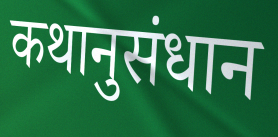
कथानुसंधान